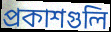
প্রকাশগুলি